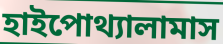
হাইপোথ্যালামাস